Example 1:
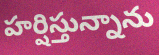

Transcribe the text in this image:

హర్షిస్తున్నాను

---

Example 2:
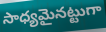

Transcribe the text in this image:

సాధ్యమైనట్టుగా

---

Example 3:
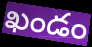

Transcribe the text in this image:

ఖండం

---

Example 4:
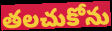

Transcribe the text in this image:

తలచుకోను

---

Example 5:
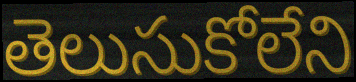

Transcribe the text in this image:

తెలుసుకోలేని